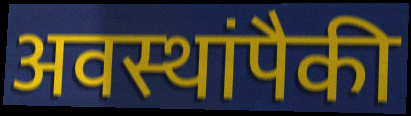
अवस्थांपैकी